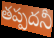
తప్పదనీ